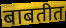
बाबतीत